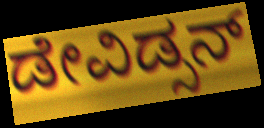
ಡೇವಿಡ್ಸನ್